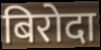
बिरोदा